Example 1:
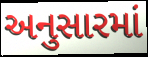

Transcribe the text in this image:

અનુસારમાં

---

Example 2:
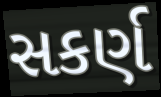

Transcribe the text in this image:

સકર્ણ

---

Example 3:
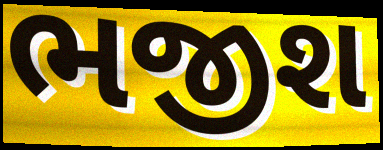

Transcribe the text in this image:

ભજીશ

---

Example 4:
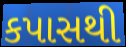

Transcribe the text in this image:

કપાસથી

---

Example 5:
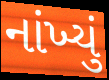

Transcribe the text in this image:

નાંખ્યું